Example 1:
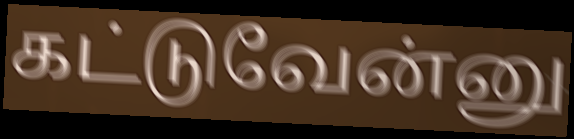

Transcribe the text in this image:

கட்டுவேன்னு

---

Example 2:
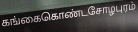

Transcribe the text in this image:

கங்கைகொண்டசோழபுரம்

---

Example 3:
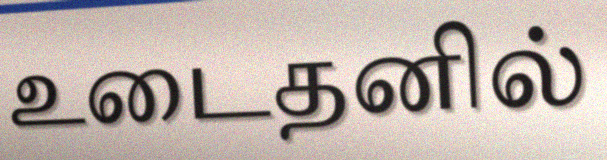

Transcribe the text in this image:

உடைதனில்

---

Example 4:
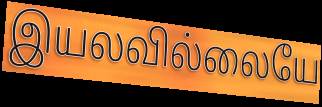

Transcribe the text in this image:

இயலவில்லையே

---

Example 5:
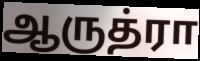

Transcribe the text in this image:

ஆருத்ரா